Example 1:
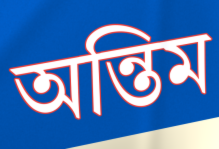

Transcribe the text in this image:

অন্তিম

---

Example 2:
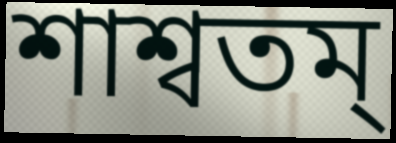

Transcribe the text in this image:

শাশ্বতম্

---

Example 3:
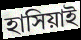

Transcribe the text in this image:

হাসিয়াই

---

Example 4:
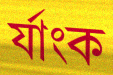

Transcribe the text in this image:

র্যাংক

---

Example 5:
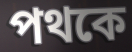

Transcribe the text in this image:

পথকে